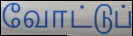
வோட்டுப்